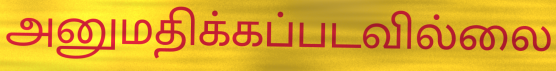
அனுமதிக்கப்படவில்லை